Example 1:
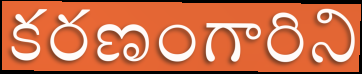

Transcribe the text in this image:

కరణంగారిని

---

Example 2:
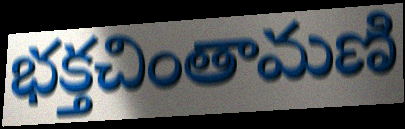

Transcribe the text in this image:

భక్తచింతామణి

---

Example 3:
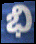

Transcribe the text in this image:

భి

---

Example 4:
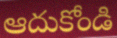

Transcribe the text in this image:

ఆదుకోండి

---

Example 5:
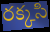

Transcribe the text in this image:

రక్కసి